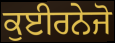
ਕੁਈਰਨੇਜੋ